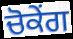
ਚੋਕੇਂਗ